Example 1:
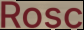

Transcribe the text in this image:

Rosc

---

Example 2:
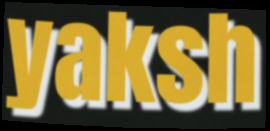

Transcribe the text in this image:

yaksh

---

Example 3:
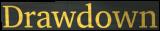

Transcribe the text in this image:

Drawdown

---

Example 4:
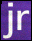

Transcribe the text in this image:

jr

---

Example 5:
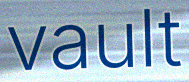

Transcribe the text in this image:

vault